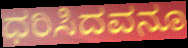
ಧರಿಸಿದವನೂ